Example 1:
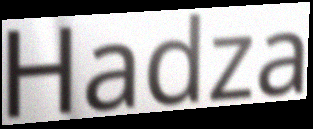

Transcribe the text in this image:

Hadza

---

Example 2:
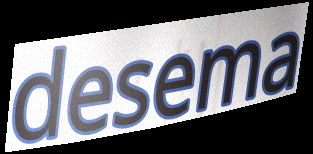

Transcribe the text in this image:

desema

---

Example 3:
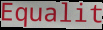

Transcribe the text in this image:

Equalit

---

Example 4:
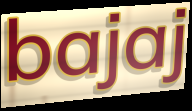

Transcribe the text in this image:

bajaj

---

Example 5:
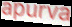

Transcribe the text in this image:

apurva